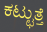
ಕಟ್ಟುತ್ತೆ